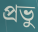
প্রভু